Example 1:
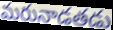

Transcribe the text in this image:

మరునాడతడు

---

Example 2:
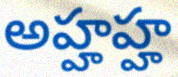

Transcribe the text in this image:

అహ్హహ్హ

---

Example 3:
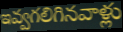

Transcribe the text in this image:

ఇవ్వగలిగినవాళ్లు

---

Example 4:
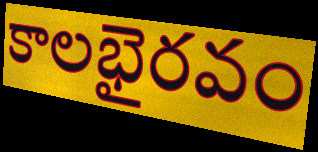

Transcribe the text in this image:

కాలభైరవం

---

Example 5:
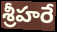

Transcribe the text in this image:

శ్రీహరే